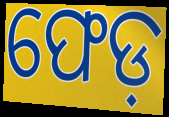
ଫେଡ଼